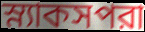
স্ন্যাকসপরা